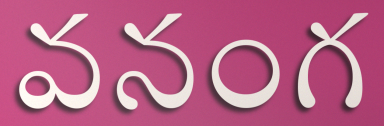
వనంగ